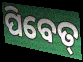
ପିବେତ୍